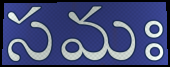
సమః